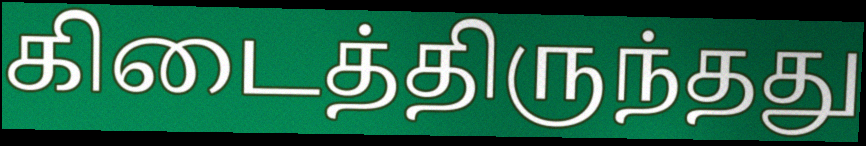
கிடைத்திருந்தது